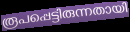
രൂപപ്പെട്ടിരുന്നതായി